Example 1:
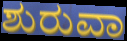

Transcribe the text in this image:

ಶುರುವಾ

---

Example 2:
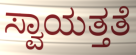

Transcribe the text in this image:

ಸ್ವಾಯತ್ತತೆ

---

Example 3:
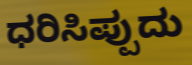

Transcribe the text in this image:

ಧರಿಸಿಪ್ಪುದು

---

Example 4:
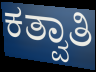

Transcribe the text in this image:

ಕತ್ವಾತಿ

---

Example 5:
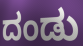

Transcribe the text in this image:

ದಂಡು